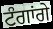
ਟੰਗਾਂਗੇ